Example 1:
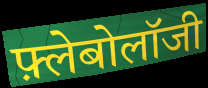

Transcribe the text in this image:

फ़्लेबोलॉजी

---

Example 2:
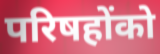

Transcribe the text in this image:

परिषहोंको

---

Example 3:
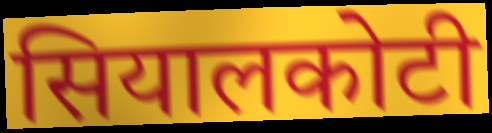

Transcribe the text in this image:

सियालकोटी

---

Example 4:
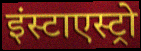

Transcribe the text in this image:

इंस्टाएस्ट्रो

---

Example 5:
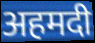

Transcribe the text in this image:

अहमदी